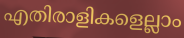
എതിരാളികളെല്ലാം